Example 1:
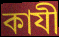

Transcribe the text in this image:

কাযী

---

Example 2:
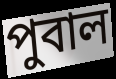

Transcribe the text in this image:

পুবাল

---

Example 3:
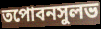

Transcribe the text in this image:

তপোবনসুলভ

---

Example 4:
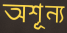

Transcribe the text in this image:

অশূন্য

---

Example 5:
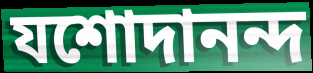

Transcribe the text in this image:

যশোদানন্দ